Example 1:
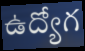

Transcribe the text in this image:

ఉద్యోగ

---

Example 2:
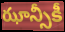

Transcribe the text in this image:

ఝాన్సీకీ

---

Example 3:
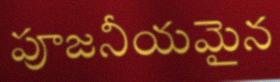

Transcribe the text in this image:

పూజనీయమైన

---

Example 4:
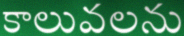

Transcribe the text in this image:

కాలువలను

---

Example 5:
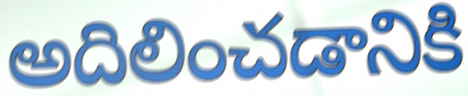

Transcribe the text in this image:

అదిలించడానికి